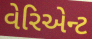
વેરિએન્ટ